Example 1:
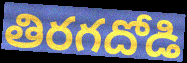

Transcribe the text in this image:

తిరగదోడి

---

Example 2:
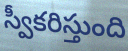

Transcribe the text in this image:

స్వీకరిస్తుంది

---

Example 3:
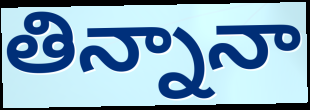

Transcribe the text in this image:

తిన్నానా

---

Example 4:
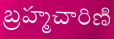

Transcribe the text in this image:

బ్రహ్మచారిణి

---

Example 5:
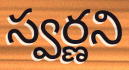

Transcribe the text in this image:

స్వర్ణని